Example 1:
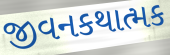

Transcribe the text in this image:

જીવનકથાત્મક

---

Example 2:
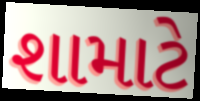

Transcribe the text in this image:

શામાટે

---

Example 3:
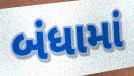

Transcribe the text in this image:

બંધામાં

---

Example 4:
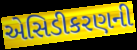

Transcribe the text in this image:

એસિડીકરણની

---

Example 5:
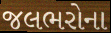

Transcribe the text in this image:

જલભરોના